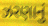
ઝરણાનું